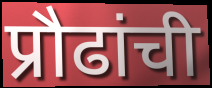
प्रौढांची